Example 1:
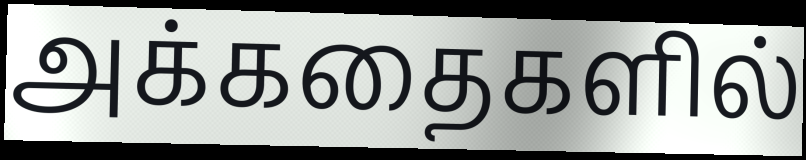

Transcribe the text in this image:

அக்கதைகளில்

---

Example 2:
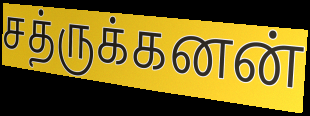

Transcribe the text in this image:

சத்ருக்கனன்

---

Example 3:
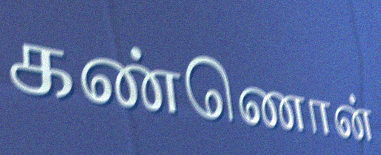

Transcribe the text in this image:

கண்ணொன்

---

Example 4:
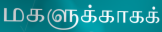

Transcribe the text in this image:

மகளுக்காகக்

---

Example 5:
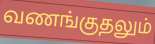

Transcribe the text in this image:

வணங்குதலும்